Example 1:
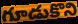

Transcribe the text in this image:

గూడుకొని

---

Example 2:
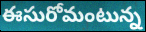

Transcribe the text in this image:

ఈసురోమంటున్న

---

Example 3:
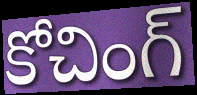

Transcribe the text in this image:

కోచింగ్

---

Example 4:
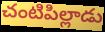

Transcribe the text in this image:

చంటిపిల్లాడు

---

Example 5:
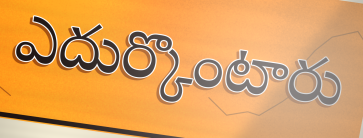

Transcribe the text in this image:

ఎదుర్కొంటారు